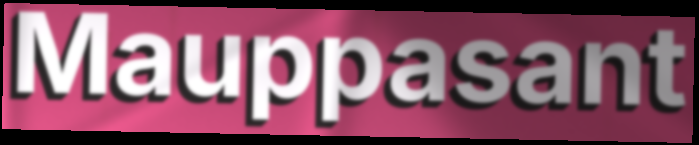
Mauppasant